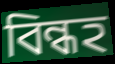
বিন্ধহ